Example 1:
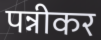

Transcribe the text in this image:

पन्नीकर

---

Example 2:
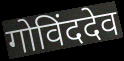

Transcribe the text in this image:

गोविंददेव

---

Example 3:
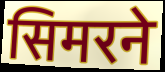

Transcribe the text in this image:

सिमरने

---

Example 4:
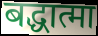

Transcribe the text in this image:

बद्धात्मा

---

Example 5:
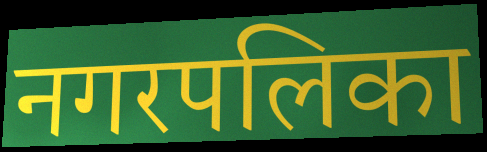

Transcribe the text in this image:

नगरपलिका